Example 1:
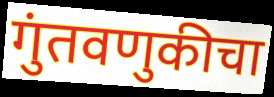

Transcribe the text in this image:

गुंतवणुकीचा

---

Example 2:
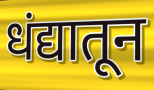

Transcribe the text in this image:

धंद्यातून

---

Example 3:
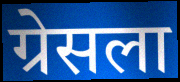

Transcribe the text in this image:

ग्रेसला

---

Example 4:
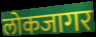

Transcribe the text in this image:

लोकजागर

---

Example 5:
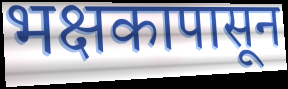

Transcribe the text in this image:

भक्षकापासून